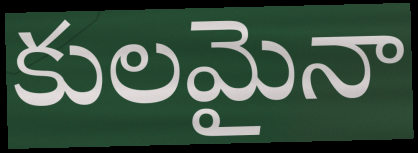
కులమైనా